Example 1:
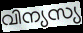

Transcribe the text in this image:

വിന്യസ്യ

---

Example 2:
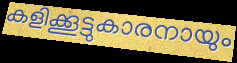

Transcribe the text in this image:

കളിക്കൂട്ടുകാരനായും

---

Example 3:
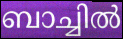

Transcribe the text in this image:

ബാച്ചിൽ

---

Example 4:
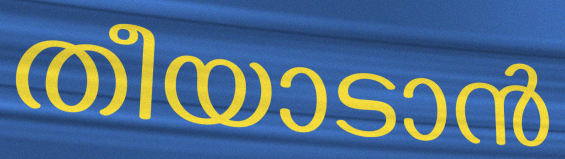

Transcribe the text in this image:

തീയാടാൻ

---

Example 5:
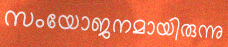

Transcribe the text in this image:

സംയോജനമായിരുന്നു